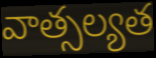
వాత్సల్యత